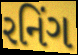
રનિંગ